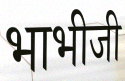
भाभीजी